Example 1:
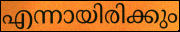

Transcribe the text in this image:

എന്നായിരിക്കും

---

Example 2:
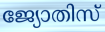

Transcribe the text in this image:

ജ്യോതിസ്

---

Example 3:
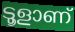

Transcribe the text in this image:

ടൂളാണ്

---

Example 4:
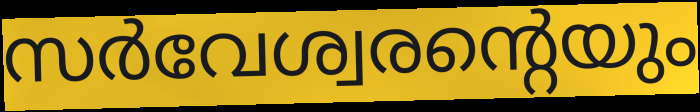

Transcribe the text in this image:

സർവേശ്വരന്റെയും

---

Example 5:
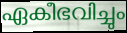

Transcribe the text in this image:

ഏകീഭവിച്ചും